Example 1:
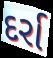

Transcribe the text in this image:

દર્રા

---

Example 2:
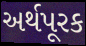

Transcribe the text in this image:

અર્થપૂરક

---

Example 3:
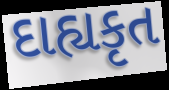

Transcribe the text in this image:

દાહ્યકૃત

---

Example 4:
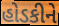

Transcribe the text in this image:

હોડકીને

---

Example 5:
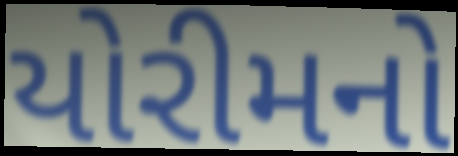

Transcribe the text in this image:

યોરીમનો